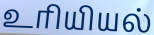
உரியியல்